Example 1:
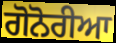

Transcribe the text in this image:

ਗੋਨੋਰੀਆ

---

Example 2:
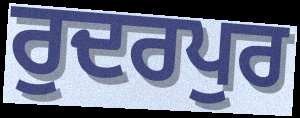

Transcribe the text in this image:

ਰੁਦਰਪੁਰ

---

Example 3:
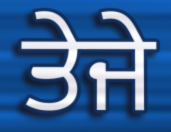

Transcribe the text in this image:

ਤੇਜੇ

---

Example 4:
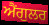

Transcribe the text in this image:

ਐਂਗੁਲਰ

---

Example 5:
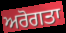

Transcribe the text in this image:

ਅਰੋਗਤਾ